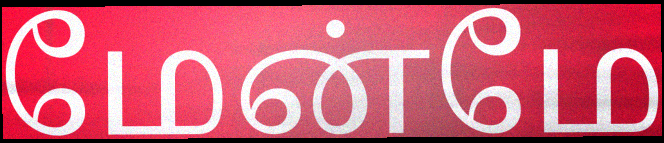
மேன்மே